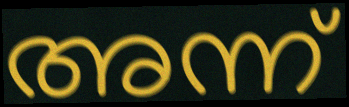
അന്ന്